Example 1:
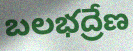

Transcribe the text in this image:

బలభద్రేణ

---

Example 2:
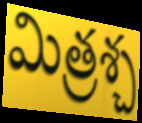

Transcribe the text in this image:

మిత్రశ్చ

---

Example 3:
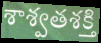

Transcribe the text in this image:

శాశ్వతశక్తి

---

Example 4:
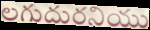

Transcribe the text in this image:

లగుదురనియు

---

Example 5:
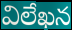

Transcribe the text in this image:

విలేఖన